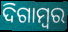
ଦିଗାମ୍ଵର